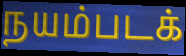
நயம்படக்